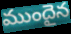
ముందైన